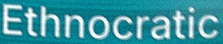
Ethnocratic